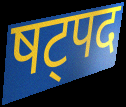
षट्पद